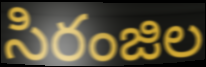
సిరంజిల